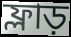
ফ্লাড়